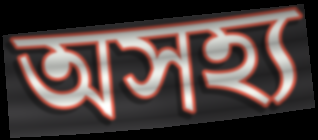
অসহ্য